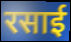
रसाई